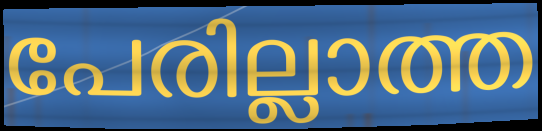
പേരില്ലാത്ത